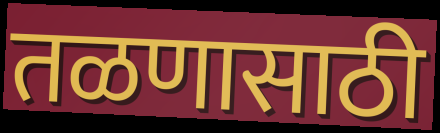
तळणासाठी